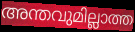
അന്തവുമില്ലാത്ത